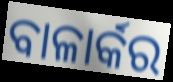
ବାଳାର୍କର